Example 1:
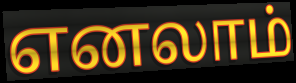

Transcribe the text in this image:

எனலாம்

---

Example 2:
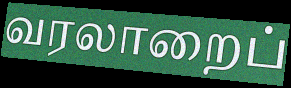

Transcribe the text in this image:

வரலாறைப்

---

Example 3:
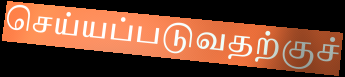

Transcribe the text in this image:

செய்யப்படுவதற்குச்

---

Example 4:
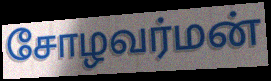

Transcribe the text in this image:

சோழவர்மன்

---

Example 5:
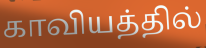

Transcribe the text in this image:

காவியத்தில்